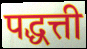
पद्धत्ती